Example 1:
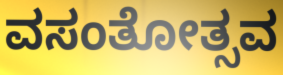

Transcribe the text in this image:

ವಸಂತೋತ್ಸವ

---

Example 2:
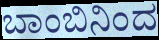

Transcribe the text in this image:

ಬಾಂಬಿನಿಂದ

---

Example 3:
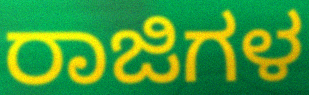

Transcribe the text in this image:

ರಾಜಿಗಳ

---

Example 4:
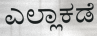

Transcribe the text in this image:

ಎಲ್ಲಾಕಡೆ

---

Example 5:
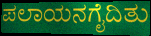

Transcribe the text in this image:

ಪಲಾಯನಗೈದಿತು